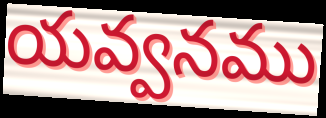
యవ్వనము